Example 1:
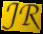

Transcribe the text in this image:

JR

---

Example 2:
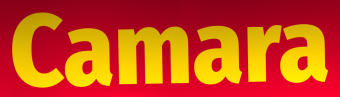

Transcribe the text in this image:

Camara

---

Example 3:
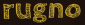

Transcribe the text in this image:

rugno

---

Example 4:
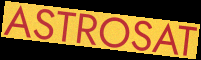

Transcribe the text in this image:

ASTROSAT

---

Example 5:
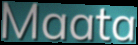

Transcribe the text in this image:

Maata